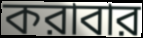
করাবার